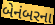
બેનંબરના